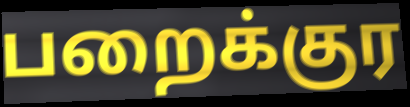
பறைக்குர